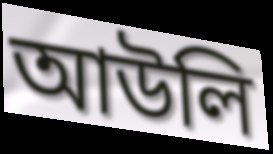
আউলি